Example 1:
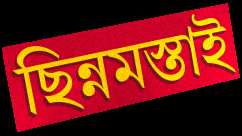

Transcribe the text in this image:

ছিন্নমস্তাই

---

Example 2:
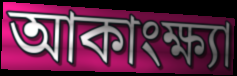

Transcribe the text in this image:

আকাংক্ষ্যা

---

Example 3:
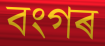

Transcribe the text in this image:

বংগৰ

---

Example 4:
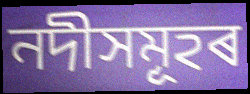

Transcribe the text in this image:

নদীসমূহৰ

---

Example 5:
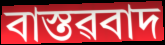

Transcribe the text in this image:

বাস্তৱবাদ